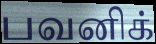
பவனிக்